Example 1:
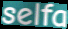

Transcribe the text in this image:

selfa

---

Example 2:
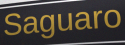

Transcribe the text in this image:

Saguaro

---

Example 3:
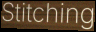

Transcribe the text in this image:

Stitching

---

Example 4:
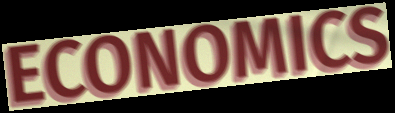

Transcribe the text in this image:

ECONOMICS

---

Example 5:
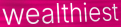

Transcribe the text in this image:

wealthiest